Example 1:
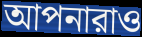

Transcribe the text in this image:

আপনারাও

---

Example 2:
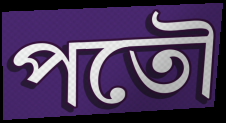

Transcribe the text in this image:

পতৌ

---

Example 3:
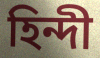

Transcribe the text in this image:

হিন্দী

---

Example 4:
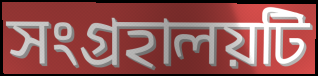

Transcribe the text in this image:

সংগ্রহালয়টি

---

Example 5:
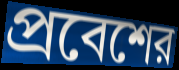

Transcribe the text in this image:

প্রবেশের